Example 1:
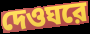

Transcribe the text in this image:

দেওঘরে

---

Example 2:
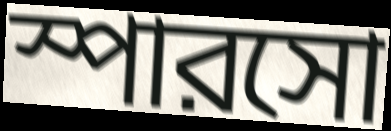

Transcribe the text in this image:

স্পারসো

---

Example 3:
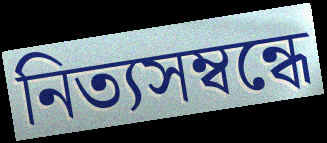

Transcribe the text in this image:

নিত্যসম্বন্ধে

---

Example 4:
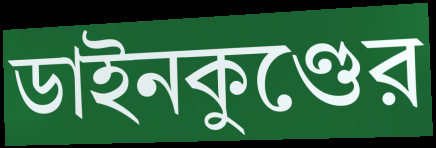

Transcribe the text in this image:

ডাইনকুণ্ডের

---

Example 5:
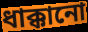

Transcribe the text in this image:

ধাক্কানো